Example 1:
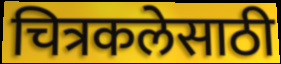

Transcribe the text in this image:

चित्रकलेसाठी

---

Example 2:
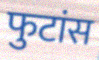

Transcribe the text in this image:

फुटांस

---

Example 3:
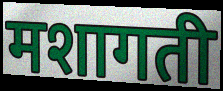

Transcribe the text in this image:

मशागती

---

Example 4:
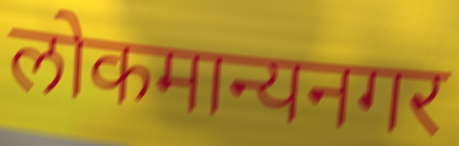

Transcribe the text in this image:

लोकमान्यनगर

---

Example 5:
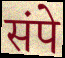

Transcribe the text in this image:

संपे